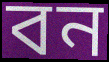
বন